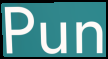
Pun